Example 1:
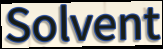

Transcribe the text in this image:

Solvent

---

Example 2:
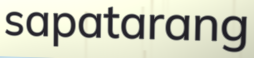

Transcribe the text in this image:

sapatarang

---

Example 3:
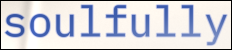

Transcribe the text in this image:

soulfully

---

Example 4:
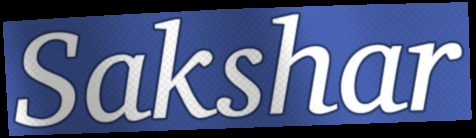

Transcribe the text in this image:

Sakshar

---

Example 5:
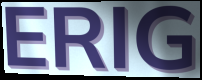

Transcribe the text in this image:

ERIG